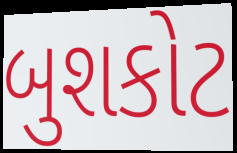
બુશકોટ